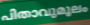
പിതാവുമൂലം